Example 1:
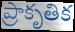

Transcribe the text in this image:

ప్రాకృతిక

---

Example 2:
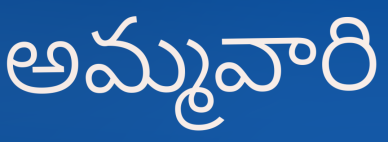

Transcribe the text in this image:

అమ్మవారి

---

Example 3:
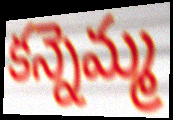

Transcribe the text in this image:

కన్నెమ్మ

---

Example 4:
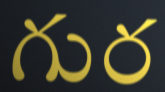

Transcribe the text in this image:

గుర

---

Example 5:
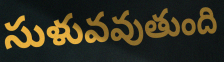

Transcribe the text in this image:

సుళువవుతుంది